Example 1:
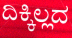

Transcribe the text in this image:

ದಿಕ್ಕಿಲ್ಲದ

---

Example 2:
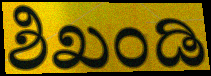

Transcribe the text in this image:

ಶಿಖಂಡಿ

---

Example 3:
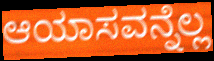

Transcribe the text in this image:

ಆಯಾಸವನ್ನೆಲ್ಲ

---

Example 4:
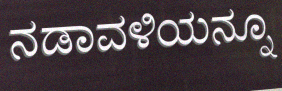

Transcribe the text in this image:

ನಡಾವಳಿಯನ್ನೂ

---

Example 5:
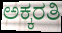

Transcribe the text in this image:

ಅಕ್ಕರತಿ